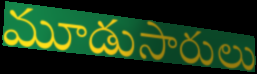
మూడుసారులు